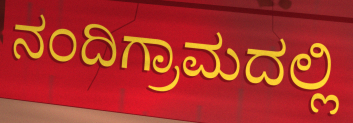
ನಂದಿಗ್ರಾಮದಲ್ಲಿ